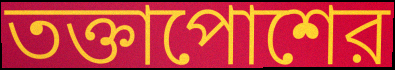
তক্তাপোশের